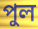
পুল